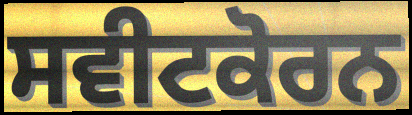
ਸਵੀਟਕੋਰਨ